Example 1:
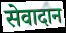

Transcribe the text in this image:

सेवादान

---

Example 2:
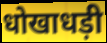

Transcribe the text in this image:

धोखाधड़ी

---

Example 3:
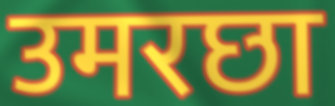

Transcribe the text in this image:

उमरछा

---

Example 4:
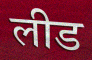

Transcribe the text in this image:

लीड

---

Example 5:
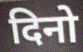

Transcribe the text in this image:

दिनो